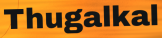
Thugalkal